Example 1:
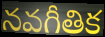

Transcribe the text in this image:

నవగీతిక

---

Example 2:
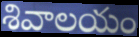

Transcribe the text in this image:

శివాలయం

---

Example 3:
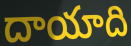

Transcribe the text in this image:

దాయాది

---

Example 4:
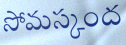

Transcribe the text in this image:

సోమస్కంద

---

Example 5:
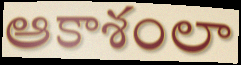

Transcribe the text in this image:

ఆకాశంలా